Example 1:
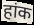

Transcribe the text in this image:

हांक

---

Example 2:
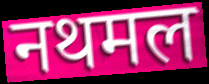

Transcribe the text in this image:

नथमल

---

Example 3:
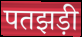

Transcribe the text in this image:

पतझड़ी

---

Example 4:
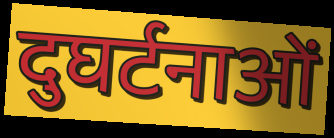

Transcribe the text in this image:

दुघर्टनाओं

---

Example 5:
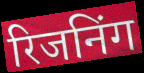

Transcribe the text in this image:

रिजनिंग